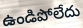
ఉండిపోలేదు